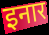
इनार